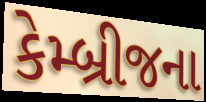
કેમ્બ્રીજના